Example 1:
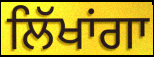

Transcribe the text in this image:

ਲਿੱਖਾਂਗਾ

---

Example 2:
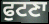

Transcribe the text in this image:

ਫੁਟਣਾ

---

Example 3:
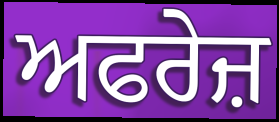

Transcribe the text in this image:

ਅਫਰੇਜ਼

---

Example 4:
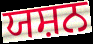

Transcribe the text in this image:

ਯਸ਼ਨ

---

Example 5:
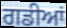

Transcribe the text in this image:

ਗਡੀਆਂ